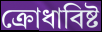
ক্রোধাবিষ্ট